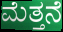
ಮೆತ್ತನೆ